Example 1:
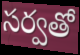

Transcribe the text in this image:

సర్వతో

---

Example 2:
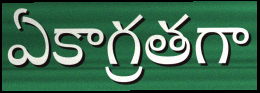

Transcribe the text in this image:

ఏకాగ్రతగా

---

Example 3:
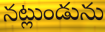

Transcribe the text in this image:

నట్లుండును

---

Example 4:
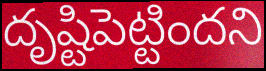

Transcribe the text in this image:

దృష్టిపెట్టిందని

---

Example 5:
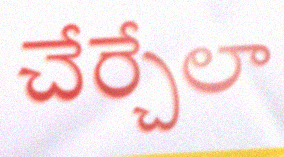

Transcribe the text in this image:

చేర్చేలా